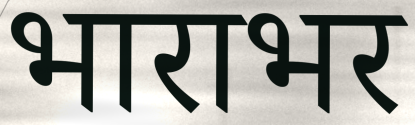
भाराभर